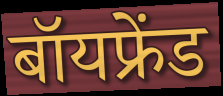
बॉयफ्रेंड